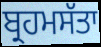
ਬ੍ਰਹਮਸੱਤਾ